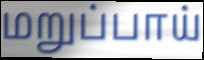
மறுப்பாய்